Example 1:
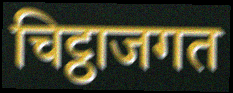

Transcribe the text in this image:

चिट्ठाजगत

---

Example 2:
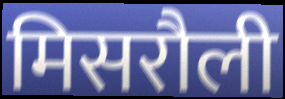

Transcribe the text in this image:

मिसरौली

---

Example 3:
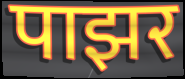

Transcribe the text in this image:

पाझर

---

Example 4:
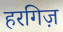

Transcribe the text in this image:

हरगिज़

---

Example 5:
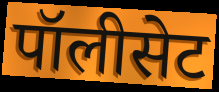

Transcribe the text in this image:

पॉलीसेट